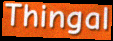
Thingal